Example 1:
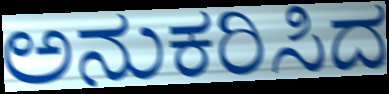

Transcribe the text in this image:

ಅನುಕರಿಸಿದ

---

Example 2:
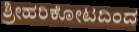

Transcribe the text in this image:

ಶ್ರೀಹರಿಕೋಟದಿಂದ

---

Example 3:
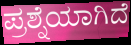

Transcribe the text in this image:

ಪ್ರಶ್ನೆಯಾಗಿದೆ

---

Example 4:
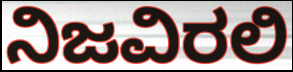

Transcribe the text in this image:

ನಿಜವಿರಲಿ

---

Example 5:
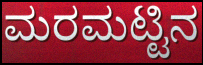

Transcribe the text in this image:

ಮರಮಟ್ಟಿನ